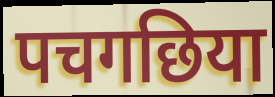
पचगछिया